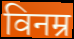
विनम्र